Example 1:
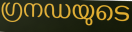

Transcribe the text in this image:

ഗ്രനഡയുടെ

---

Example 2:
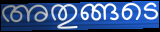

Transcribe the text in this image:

അതുങ്ങടെ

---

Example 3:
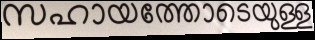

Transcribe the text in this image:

സഹായത്തോടെയുള്ള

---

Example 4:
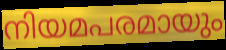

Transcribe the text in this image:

നിയമപരമായും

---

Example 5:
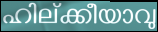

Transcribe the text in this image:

ഹില്ക്കീയാവു